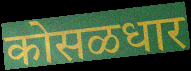
कोसळधार